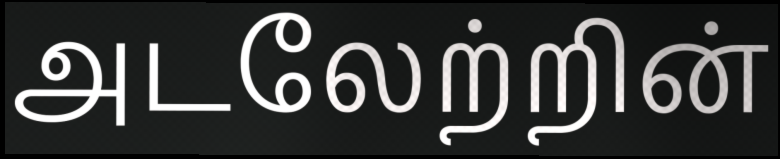
அடலேற்றின்